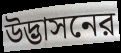
উদ্ভাসনের